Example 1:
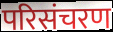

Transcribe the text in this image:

परिसंचरण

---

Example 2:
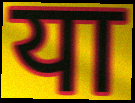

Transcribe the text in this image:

या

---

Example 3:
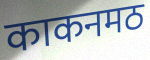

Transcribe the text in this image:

काकनमठ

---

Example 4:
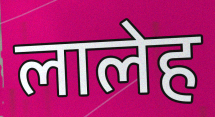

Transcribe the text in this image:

लालेह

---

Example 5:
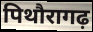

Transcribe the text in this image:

पिथौरागढ़